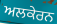
ਅਲਕੇਰਨ